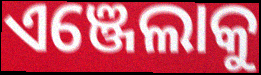
ଏଞ୍ଜେଲାକୁ